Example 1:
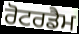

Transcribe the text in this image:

ਰੋਟਰਡੈਮ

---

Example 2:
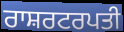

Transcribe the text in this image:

ਰਾਸ਼ਰਟਰਪਤੀ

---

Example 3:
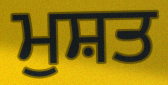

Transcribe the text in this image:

ਮੁਸ਼ਤ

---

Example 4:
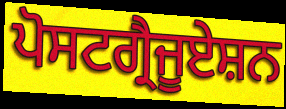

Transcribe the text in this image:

ਪੋਸਟਗ੍ਰੈਜੂਏਸ਼ਨ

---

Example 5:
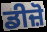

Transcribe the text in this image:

ਡੀਜ਼ੋ